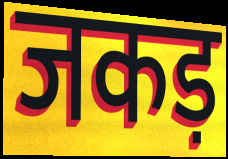
जकड़